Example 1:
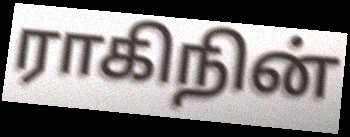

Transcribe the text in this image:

ராகிநின்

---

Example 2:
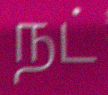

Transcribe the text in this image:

நட்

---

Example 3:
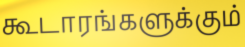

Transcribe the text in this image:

கூடாரங்களுக்கும்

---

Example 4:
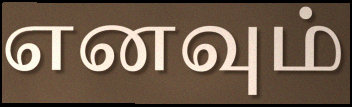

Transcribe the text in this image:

எனவும்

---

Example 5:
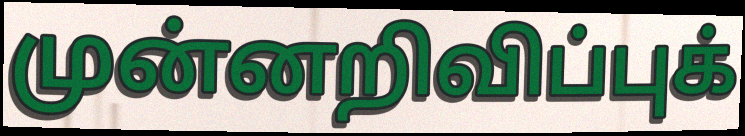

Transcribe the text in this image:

முன்னறிவிப்புக்